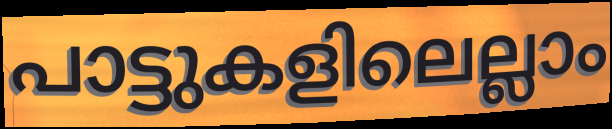
പാട്ടുകളിലെല്ലാം